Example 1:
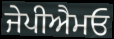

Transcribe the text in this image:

ਜੇਪੀਐਮਓ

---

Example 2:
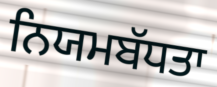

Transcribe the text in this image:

ਨਿਯਮਬੱਧਤਾ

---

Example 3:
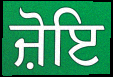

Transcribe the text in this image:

ਜ਼ੋਇ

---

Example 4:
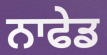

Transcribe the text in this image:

ਨਾਫੇਡ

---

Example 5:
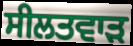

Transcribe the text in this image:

ਸੀਲਤਵਾੜ